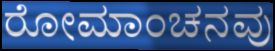
ರೋಮಾಂಚನವು